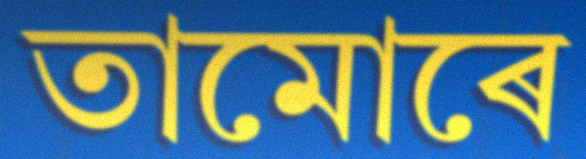
তামোৰে